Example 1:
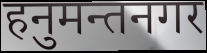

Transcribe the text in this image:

हनुमन्तनगर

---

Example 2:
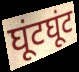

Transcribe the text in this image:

घूंटघूंट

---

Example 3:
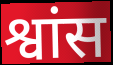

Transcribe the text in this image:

श्वांस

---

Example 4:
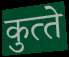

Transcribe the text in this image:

कुत्‍ते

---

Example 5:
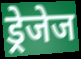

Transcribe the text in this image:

ड्रेजेज